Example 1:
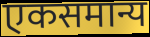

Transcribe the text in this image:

एकसमान्य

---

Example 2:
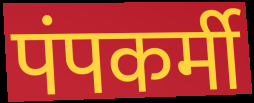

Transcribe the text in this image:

पंपकर्मी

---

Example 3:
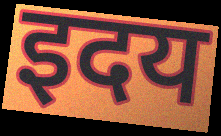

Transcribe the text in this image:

इदय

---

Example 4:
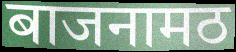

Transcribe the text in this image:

बाजनामठ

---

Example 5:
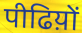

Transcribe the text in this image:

पीढिय़ों